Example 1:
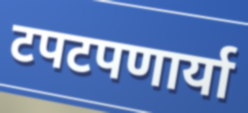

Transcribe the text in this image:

टपटपणार्या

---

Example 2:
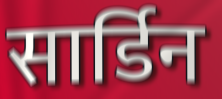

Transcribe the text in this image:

सार्डिन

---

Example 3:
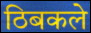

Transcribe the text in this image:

ठिबकले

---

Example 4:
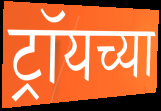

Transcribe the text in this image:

ट्रॉयच्या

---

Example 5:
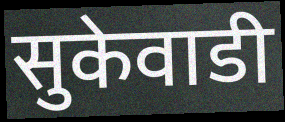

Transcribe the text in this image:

सुकेवाडी